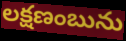
లక్షణంబును